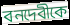
বনদেবীকে